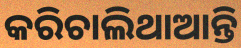
କରିଚାଲିଥାଆନ୍ତି